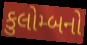
કુલોમ્બનો